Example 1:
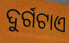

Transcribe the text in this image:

ଦୁର୍ଗଟାଏ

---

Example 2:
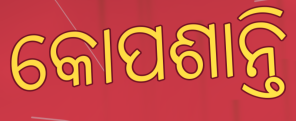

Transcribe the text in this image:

କୋପଶାନ୍ତି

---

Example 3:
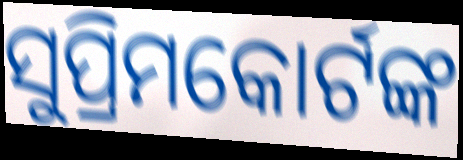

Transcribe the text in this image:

ସୁପ୍ରିମକୋର୍ଟଙ୍କ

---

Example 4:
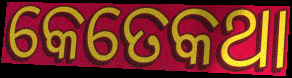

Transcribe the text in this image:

କେତେକଥା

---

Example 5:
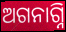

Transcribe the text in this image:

ଅଗନାଗ୍ନି